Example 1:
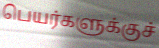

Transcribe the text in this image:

பெயர்களுக்குச்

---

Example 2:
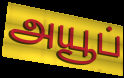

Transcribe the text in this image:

அயூப்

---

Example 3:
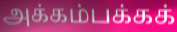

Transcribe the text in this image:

அக்கம்பக்கக்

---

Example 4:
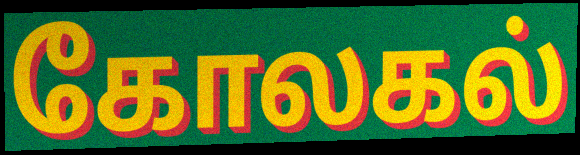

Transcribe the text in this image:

கோலகல்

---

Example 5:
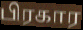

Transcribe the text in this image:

பிரகார